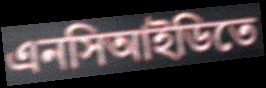
এনসিআইডিতে